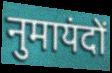
नुमायंदों